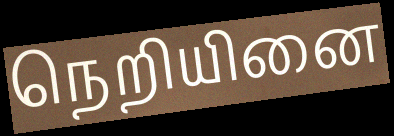
நெறியினை